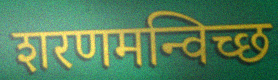
शरणमन्विच्छ